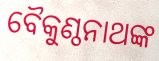
ବୈକୁଣ୍ଠନାଥଙ୍କ